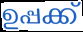
ഉപ്പക്ക്